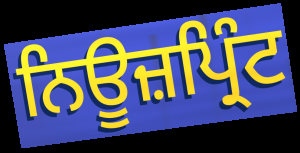
ਨਿਊਜ਼ਪ੍ਰਿੰਟ